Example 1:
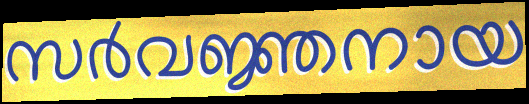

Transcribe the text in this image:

സർവജ്ഞനായ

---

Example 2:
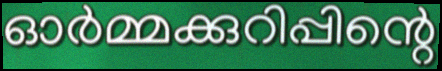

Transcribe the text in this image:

ഓർമ്മക്കുറിപ്പിന്റെ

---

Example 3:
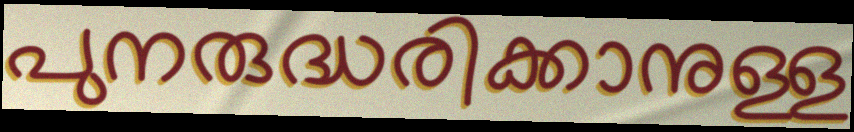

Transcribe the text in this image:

പുനരുദ്ധരിക്കാനുള്ള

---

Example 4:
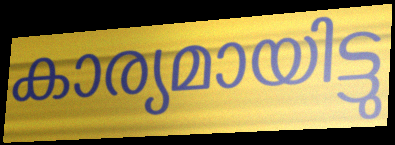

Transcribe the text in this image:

കാര്യമായിട്ടു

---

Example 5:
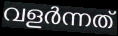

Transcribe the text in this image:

വളർന്നത്